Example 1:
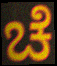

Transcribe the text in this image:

ಚೆ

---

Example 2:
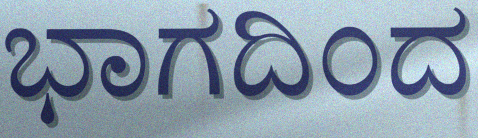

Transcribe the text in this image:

ಭಾಗದಿಂದ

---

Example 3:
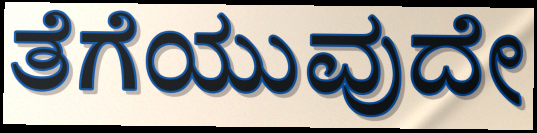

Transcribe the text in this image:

ತೆಗೆಯುವುದೇ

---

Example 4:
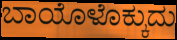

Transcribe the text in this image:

ಬಾಯೊಳೊಕ್ಕುದು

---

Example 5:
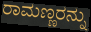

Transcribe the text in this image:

ರಾಮಣ್ಣರನ್ನು